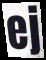
ej